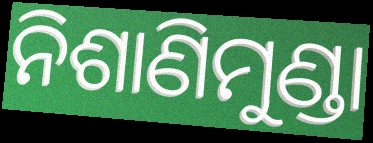
ନିଶାଣିମୁଣ୍ଡା